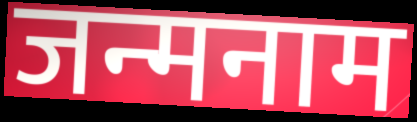
जन्मनाम